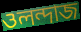
ওলন্দাজ